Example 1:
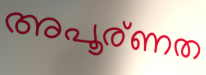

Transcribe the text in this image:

അപൂര്ണത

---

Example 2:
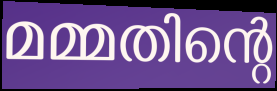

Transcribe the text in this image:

മമ്മതിന്റെ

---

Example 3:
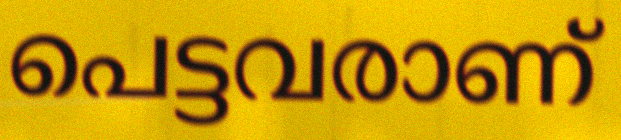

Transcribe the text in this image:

പെട്ടവരാണ്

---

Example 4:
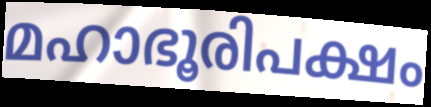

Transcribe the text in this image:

മഹാഭൂരിപക്ഷം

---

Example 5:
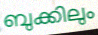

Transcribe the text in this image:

ബുക്കിലും